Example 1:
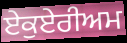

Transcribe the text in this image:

ਏਕੁਏਰੀਅਮ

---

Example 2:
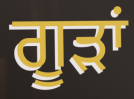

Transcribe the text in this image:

ਗੂੜਾਂ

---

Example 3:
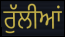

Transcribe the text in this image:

ਰੁੱਲੀਆਂ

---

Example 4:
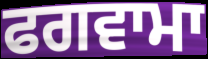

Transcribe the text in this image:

ਫਗਵਾਮਾ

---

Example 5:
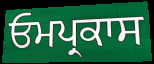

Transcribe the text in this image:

ਓਮਪ੍ਰਕਾਸ